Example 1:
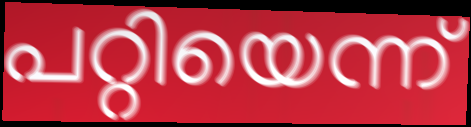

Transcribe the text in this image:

പറ്റിയെന്ന്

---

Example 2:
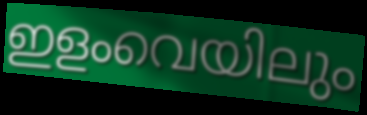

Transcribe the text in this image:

ഇളംവെയിലും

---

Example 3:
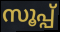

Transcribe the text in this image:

സൂപ്പ്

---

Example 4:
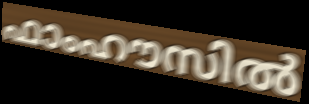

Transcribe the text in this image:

ഫാംഹൗസിൽ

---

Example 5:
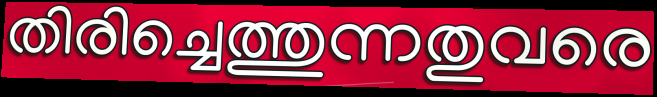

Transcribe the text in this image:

തിരിച്ചെത്തുന്നതുവരെ